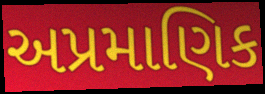
અપ્રમાણિક